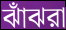
ঝাঁঝরা